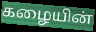
கழையின்